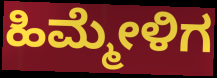
ಹಿಮ್ಮೇಳಿಗ